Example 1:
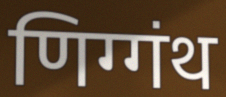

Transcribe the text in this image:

णिग्गंथ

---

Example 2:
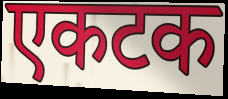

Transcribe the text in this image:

एकटक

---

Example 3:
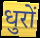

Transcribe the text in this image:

धुरों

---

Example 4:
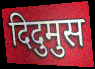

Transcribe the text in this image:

दिदुमुस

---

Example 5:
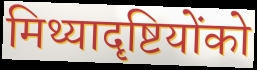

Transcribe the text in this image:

मिथ्यादृष्टियोंको